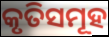
କୃତିସମୂହ